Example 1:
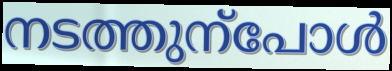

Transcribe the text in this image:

നടത്തുന്പോൾ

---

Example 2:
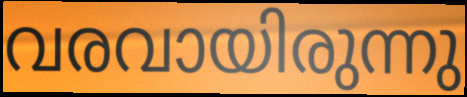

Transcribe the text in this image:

വരവായിരുന്നു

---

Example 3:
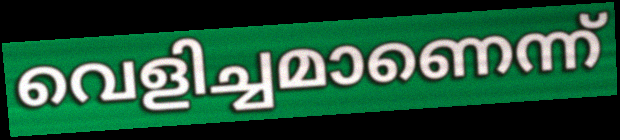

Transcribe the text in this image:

വെളിച്ചമാണെന്ന്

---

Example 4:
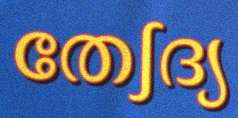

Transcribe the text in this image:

തേഽദ്യ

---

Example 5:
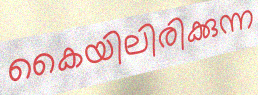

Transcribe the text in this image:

കൈയിലിരിക്കുന്ന